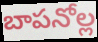
బాపనోల్ల